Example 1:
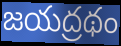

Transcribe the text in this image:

జయద్రథం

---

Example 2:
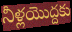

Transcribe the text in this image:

నీళ్లయొద్దకు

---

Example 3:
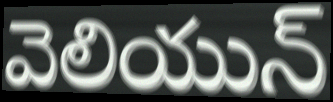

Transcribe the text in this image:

వెలియున్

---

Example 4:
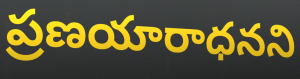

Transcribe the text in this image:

ప్రణయారాధనని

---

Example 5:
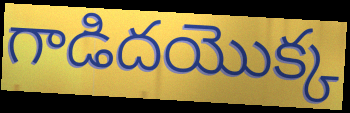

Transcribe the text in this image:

గాడిదయొక్క